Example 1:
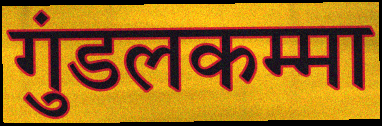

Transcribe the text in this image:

गुंडलकम्मा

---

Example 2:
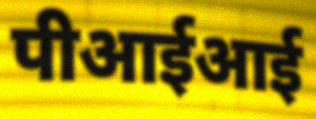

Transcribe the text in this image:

पीआईआई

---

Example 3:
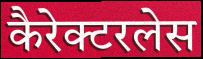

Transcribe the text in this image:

कैरेक्टरलेस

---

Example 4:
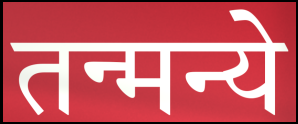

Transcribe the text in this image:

तन्मन्ये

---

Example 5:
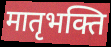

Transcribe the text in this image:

मातृभक्ति